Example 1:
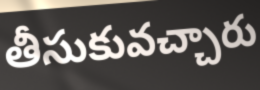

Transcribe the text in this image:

తీసుకువచ్చారు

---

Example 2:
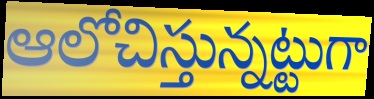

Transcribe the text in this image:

ఆలోచిస్తున్నట్టుగా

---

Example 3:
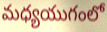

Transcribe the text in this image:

మధ్యయుగంలో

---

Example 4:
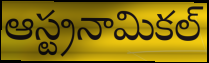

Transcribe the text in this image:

ఆస్ట్రనామికల్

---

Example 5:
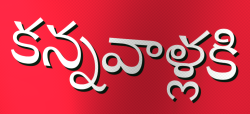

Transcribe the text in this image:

కన్నవాళ్లకి